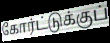
கோர்ட்டுக்குப்